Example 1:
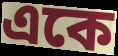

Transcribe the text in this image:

একে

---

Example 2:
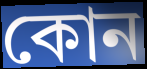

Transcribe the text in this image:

কোন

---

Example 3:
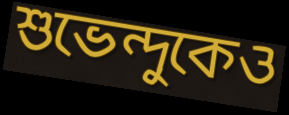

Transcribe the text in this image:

শুভেন্দুকেও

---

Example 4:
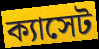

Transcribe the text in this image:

ক্যাসেট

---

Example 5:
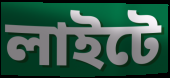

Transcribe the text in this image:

লাইটে